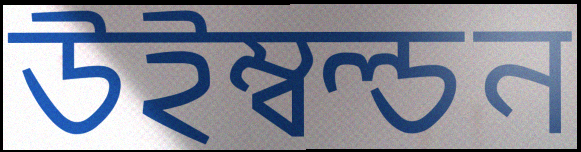
উইম্বল্ডন